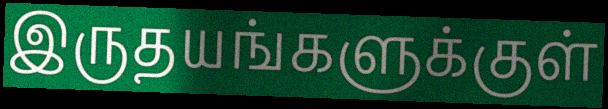
இருதயங்களுக்குள்